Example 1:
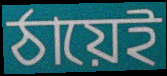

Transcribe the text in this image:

ঠায়েই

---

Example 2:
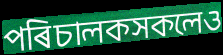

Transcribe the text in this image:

পৰিচালকসকলেও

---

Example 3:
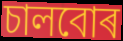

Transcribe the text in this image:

চালবোৰ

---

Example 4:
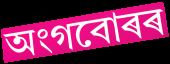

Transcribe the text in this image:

অংগবোৰৰ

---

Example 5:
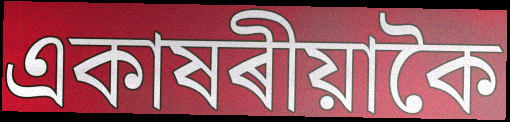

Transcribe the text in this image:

একাষৰীয়াকৈ